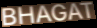
BHAGAT